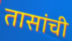
तासांची